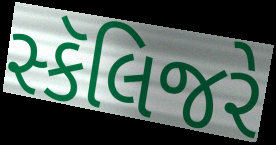
સ્કૅલિજરે